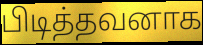
பிடித்தவனாக